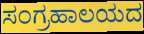
ಸಂಗ್ರಹಾಲಯದ